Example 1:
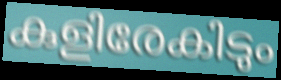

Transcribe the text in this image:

കുളിരേകിടും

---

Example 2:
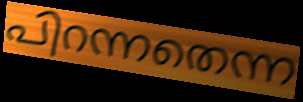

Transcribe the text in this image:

പിറന്നതെന്ന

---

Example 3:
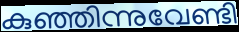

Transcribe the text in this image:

കുഞ്ഞിന്നുവേണ്ടി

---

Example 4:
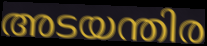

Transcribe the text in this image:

അടയന്തിര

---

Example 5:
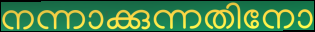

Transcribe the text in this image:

നന്നാക്കുന്നതിനോ